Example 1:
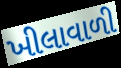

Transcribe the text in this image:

ખીલાવાળી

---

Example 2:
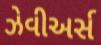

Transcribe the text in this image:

ઝેવીઅર્સ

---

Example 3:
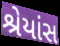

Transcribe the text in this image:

શ્રેયાંસ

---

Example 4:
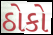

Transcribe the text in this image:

ઠોકો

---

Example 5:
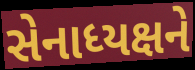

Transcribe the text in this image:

સેનાધ્યક્ષને